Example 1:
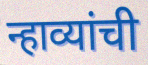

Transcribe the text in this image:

न्हाव्यांची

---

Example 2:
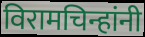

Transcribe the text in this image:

विरामचिन्हांनी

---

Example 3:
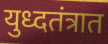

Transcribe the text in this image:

युध्दतंत्रात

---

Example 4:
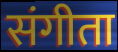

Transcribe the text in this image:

संगीता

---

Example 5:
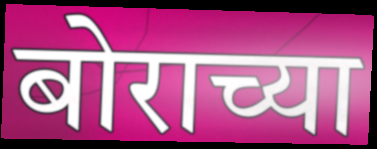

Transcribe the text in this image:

बोराच्या